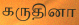
கருதினா